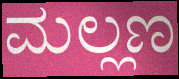
ಮಲ್ಲಣ